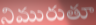
నిమురుతూ